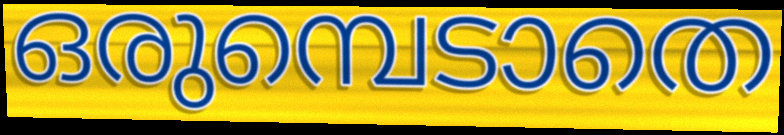
ഒരുമ്പെടാതെ